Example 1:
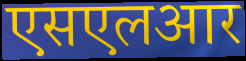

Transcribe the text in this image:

एसएलआर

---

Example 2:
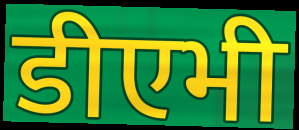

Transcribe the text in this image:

डीएभी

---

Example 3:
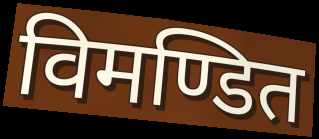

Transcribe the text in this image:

विमण्डित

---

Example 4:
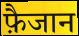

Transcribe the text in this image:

फ़ैजान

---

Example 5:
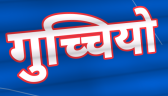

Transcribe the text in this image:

गुच्चियो